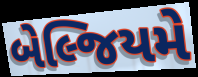
બેલ્જિયમે